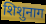
शिशुनाग